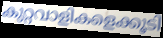
കുറ്റവാളികളെക്കൂടി